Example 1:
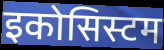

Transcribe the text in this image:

इकोसिस्टम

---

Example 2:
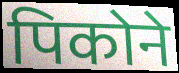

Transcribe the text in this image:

पिकोने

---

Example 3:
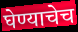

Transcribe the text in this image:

घेण्याचेच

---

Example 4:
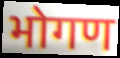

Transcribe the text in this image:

भोगण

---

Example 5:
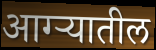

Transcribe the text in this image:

आग्ऱ्यातील